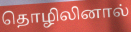
தொழிலினால்